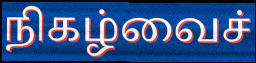
நிகழ்வைச்